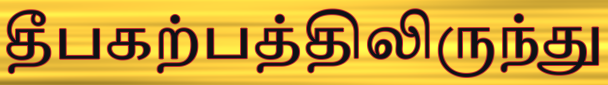
தீபகற்பத்திலிருந்து